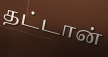
தட்டான்